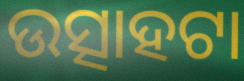
ଉତ୍ସାହଟା